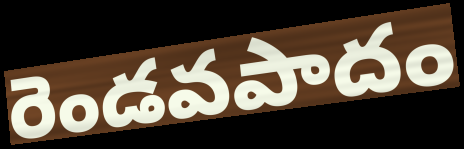
రెండవపాదం